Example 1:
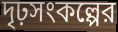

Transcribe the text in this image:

দৃঢ়সংকল্পের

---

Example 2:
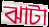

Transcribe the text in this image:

ঝাটা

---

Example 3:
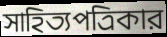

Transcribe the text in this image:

সাহিত্যপত্রিকার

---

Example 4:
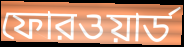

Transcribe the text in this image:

ফোরওয়ার্ড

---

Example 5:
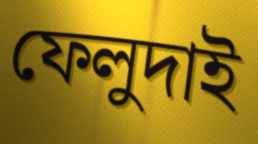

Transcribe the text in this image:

ফেলুদাই